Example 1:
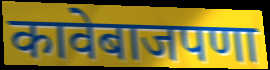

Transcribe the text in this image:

कावेबाजपणा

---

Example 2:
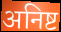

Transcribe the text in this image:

अनिष्ट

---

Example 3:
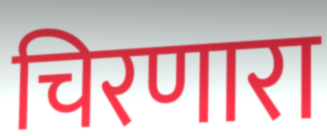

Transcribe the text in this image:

चिरणारा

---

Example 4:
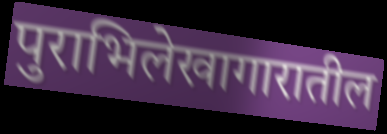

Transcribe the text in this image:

पुराभिलेखागारातील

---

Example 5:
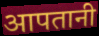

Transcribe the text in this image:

आपतानी